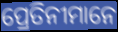
ପ୍ରେତିନୀମାନେ